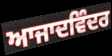
ਆਜਾਦਵਿੰਦਰ